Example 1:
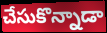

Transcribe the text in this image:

చేసుకొన్నాడా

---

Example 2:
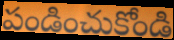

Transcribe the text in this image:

పండించుకోండి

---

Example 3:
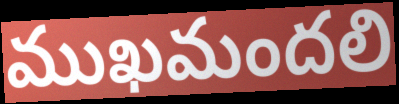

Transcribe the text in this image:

ముఖమందలి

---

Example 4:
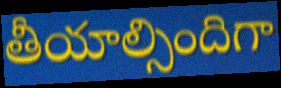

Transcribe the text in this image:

తీయాల్సిందిగా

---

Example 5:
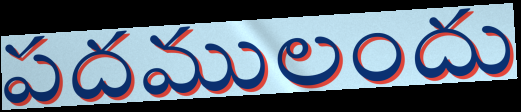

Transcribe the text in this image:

పదములందు